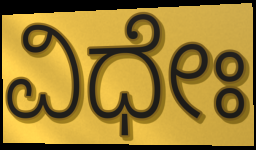
ವಿಧೇಃ